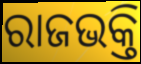
ରାଜଭକ୍ତି